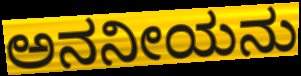
ಅನನೀಯನು